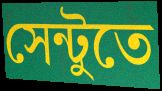
সেন্টুতে